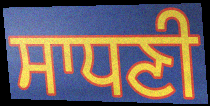
ਸਾਧਣੀ